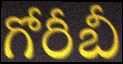
గోరీబీ